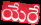
యేరే